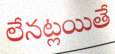
లేనట్లయితే